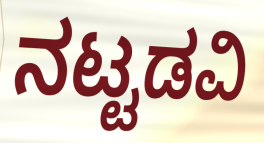
ನಟ್ಟಡವಿ